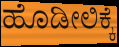
ಹೊಡೀಲಿಕ್ಕೆ